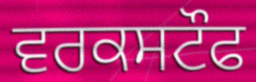
ਵਰਕਸਟੌਫ